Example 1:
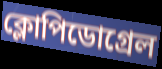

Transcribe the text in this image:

ক্লোপিডোগ্রেল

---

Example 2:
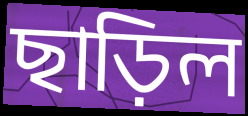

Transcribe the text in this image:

ছাড়িল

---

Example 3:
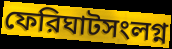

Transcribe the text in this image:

ফেরিঘাটসংলগ্ন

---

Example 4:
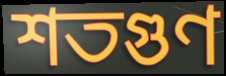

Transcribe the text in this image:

শতগুণ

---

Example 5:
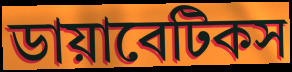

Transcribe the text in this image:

ডায়াবেটিকস